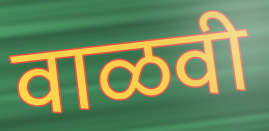
वाळवी